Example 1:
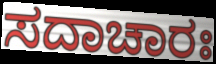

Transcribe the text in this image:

ಸದಾಚಾರಃ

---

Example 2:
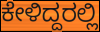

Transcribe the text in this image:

ಕೇಳಿದ್ದರಲ್ಲಿ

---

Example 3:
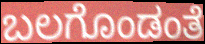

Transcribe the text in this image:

ಬಲಗೊಂಡಂತೆ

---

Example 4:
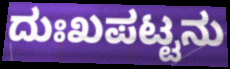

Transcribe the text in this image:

ದುಃಖಪಟ್ಟನು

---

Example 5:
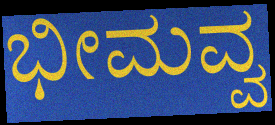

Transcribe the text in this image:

ಭೀಮವ್ವ